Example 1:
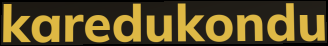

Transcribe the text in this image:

karedukondu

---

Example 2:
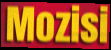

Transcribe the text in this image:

Mozisi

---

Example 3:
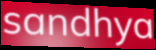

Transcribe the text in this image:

sandhya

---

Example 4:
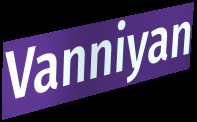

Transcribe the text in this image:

Vanniyan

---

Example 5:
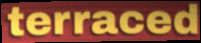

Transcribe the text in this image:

terraced